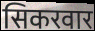
सिकरवार